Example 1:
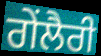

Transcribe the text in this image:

ਗੇਂਲੈਰੀ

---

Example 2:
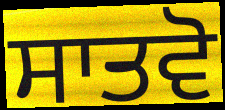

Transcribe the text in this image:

ਸਾਤਵੋ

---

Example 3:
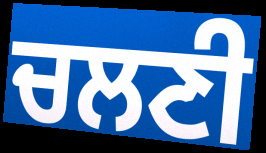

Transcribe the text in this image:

ਚਲਣੀ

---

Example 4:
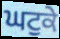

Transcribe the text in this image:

ਘਟੁਕੇ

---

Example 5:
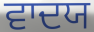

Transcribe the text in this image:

ਵਾਦਯ